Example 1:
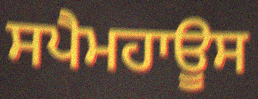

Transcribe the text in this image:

ਸਪੈਮਹਾਊਸ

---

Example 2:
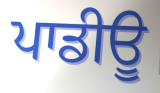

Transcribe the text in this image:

ਪਾਡੀਊ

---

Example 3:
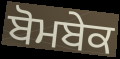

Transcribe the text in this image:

ਬੋਮਬੇਕ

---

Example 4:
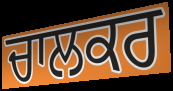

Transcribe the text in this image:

ਚਾਲਕਰ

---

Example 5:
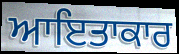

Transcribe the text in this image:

ਆਇਤਾਕਾਰ